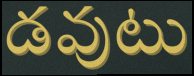
డవుటు